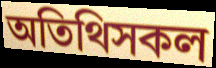
অতিথিসকল